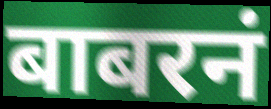
बाबरनं